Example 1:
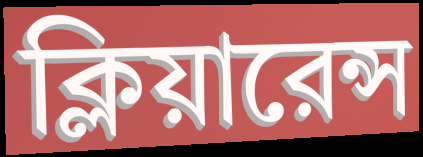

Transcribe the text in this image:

ক্লিয়ারেন্স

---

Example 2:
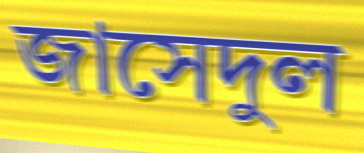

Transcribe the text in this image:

জাসেদুল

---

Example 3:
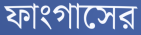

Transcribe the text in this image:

ফাংগাসের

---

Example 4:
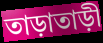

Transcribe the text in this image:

তাড়াতাড়ী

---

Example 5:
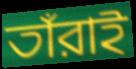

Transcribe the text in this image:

তাঁরাই